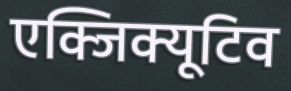
एक्जिक्यूटिव